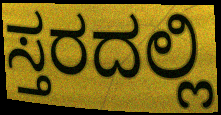
ಸ್ತರದಲ್ಲಿ